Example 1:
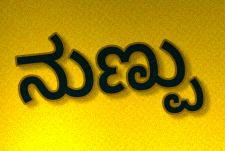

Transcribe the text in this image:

ನುಣ್ಪು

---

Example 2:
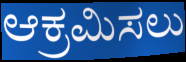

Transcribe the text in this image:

ಆಕ್ರಮಿಸಲು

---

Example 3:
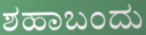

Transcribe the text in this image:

ಶಹಾಬಂದು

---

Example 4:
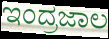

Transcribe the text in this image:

ಇಂದ್ರಜಾಲ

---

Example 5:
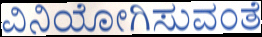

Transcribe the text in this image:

ವಿನಿಯೋಗಿಸುವಂತೆ